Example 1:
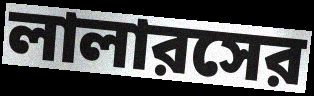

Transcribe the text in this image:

লালারসের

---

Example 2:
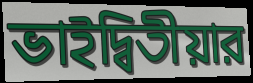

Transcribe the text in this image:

ভাইদ্বিতীয়ার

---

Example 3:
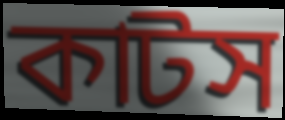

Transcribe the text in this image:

কাটস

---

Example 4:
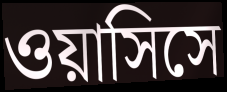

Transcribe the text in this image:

ওয়াসিসে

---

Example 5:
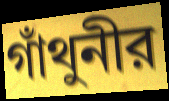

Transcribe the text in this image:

গাঁথুনীর